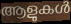
ആളുകൾ